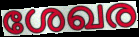
ശേഖര